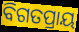
ବିଗତପ୍ରାୟ